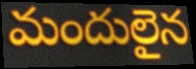
మందులైన